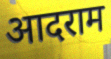
आदराम